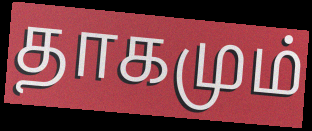
தாகமும்